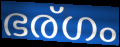
ഭര്ഗം